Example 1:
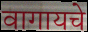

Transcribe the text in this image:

वागायचे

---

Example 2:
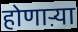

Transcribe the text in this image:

होणाऱ्‍या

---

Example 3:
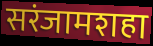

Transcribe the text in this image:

सरंजामशहा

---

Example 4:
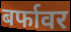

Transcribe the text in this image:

बर्फावर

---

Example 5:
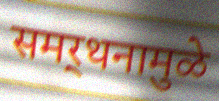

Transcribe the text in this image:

समर्थनामुळे